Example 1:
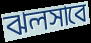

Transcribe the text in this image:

ঝলসাবে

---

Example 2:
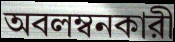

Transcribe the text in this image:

অবলম্বনকারী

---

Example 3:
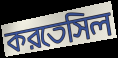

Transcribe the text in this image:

করতেসিল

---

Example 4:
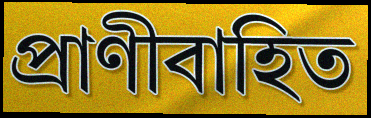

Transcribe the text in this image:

প্রাণীবাহিত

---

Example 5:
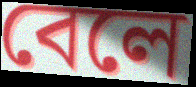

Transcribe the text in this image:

বেলে